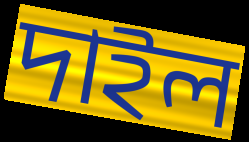
দাইল